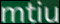
mtiu